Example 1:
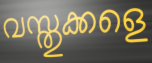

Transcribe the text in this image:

വസ്തുക്കളെ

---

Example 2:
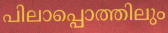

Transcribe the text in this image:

പിലാപ്പൊത്തിലും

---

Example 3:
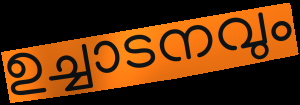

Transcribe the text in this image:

ഉച്ചാടനവും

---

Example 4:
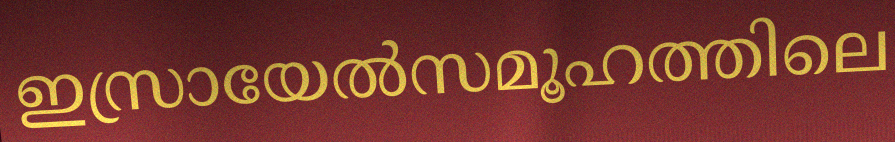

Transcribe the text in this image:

ഇസ്രായേൽസമൂഹത്തിലെ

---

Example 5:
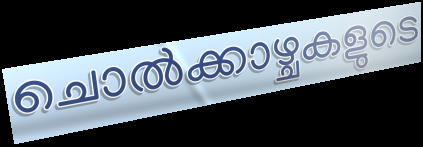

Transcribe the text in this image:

ചൊൽക്കാഴ്ചകളുടെ